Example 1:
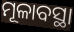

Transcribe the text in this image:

ମୂଳାବସ୍ଥା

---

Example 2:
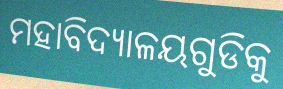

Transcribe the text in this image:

ମହାବିଦ୍ୟାଳୟଗୁଡିକୁ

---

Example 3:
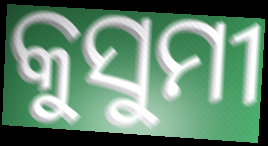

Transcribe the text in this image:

କୁସୁମୀ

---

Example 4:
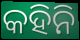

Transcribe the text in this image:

କହିନି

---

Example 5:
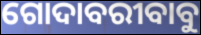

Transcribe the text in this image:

ଗୋଦାବରୀବାବୁ